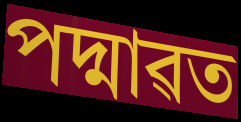
পদ্মাৱত